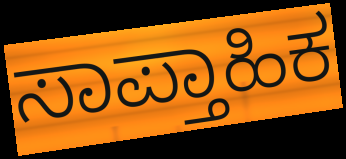
ಸಾಪ್ತಾಹಿಕ